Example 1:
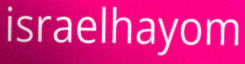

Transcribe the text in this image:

israelhayom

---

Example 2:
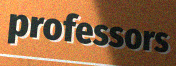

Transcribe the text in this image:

professors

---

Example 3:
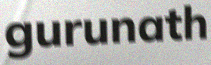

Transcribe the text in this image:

gurunath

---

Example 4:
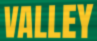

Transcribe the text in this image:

VALLEY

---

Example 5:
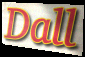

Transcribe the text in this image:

Dall